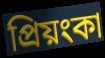
প্ৰিয়ংকা